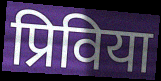
प्रिविया